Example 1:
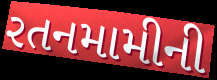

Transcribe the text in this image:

રતનમામીની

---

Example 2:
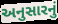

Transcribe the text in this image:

અનુસારનું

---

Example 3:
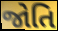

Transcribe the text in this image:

જોતિ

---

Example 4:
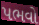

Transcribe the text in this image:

પભવો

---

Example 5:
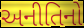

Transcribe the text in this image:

અનીતિનો